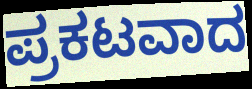
ಪ್ರಕಟವಾದ